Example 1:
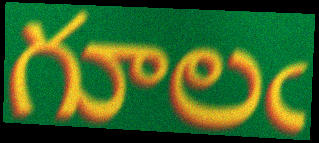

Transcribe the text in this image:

గూలఁ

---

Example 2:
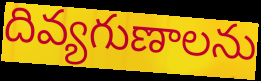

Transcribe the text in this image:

దివ్యగుణాలను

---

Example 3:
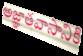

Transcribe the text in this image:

అజ్ఞాతవాసానికి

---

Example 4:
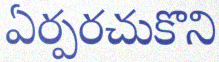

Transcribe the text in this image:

ఏర్పరచుకొని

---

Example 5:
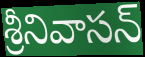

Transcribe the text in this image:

శ్రీనివాసన్